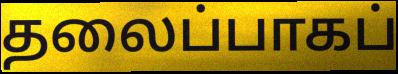
தலைப்பாகப்